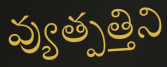
వ్యుత్పత్తిని